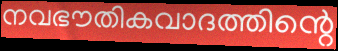
നവഭൗതികവാദത്തിന്റെ